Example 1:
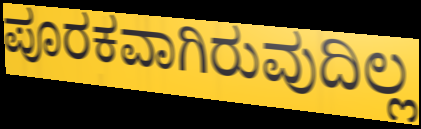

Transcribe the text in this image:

ಪೂರಕವಾಗಿರುವುದಿಲ್ಲ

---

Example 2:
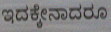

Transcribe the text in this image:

ಇದಕ್ಕೇನಾದರೂ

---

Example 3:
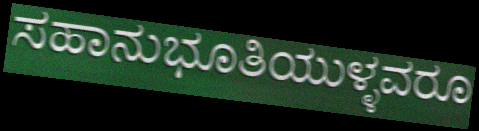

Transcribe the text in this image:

ಸಹಾನುಭೂತಿಯುಳ್ಳವರೂ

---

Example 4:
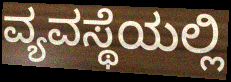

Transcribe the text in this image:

ವ್ಯವಸ್ಥೆಯಲ್ಲಿ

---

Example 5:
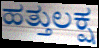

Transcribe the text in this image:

ಹತ್ತುಲಕ್ಷ